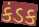
કંડક